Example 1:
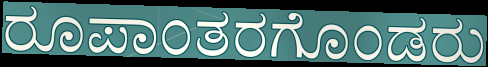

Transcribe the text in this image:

ರೂಪಾಂತರಗೊಂಡರು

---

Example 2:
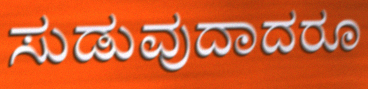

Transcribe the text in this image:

ಸುಡುವುದಾದರೂ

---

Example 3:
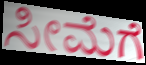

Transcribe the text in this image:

ಸೀಮೆಗೆ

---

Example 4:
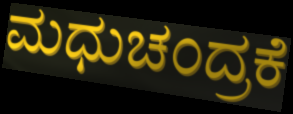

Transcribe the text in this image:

ಮಧುಚಂದ್ರಕೆ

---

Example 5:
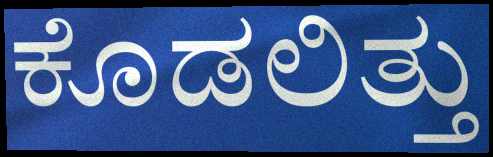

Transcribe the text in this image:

ಕೊಡಲಿತ್ತು